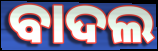
ବାଦଲ